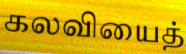
கலவியைத்